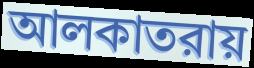
আলকাতরায়